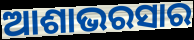
ଆଶାଭରସାର